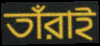
তাঁরাই